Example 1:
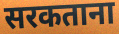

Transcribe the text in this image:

सरकताना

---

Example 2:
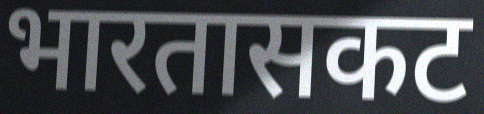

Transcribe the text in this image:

भारतासकट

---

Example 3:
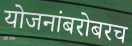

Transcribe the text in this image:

योजनांबरोबरच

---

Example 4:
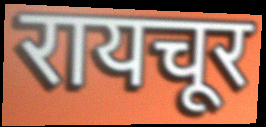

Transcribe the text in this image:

रायचूर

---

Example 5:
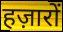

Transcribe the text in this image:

हज़ारों